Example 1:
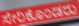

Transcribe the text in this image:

ಸೇರಿಕೊಂಡರು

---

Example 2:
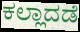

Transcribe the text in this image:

ಕಲ್ಲಾದಡೆ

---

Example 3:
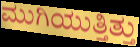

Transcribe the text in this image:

ಮುಗಿಯುತ್ತಿತ್ತು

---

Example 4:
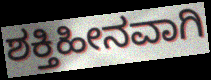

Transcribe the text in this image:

ಶಕ್ತಿಹೀನವಾಗಿ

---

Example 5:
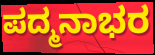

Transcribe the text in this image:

ಪದ್ಮನಾಭರ